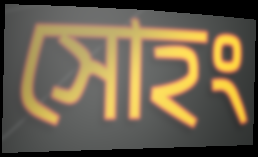
সোহং